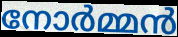
നോർമ്മൻ